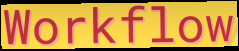
Workflow